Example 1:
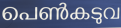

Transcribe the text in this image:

പെൺകടുവ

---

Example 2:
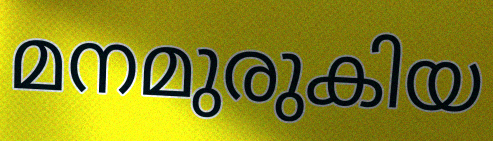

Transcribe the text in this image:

മനമുരുകിയ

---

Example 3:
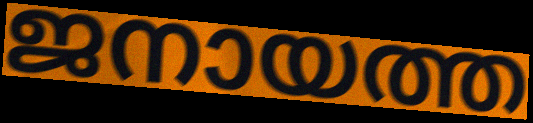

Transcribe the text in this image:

ജനായത്ത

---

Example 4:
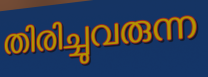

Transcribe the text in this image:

തിരിച്ചുവരുന്ന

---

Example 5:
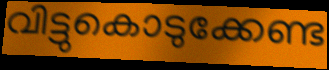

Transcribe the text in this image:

വിട്ടുകൊടുക്കേണ്ട